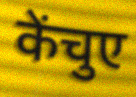
केंचुए